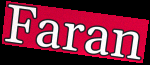
Faran